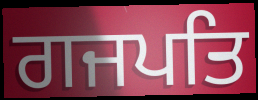
ਗਜਪਤਿ